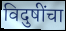
विदुषींचा